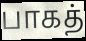
பாகத்